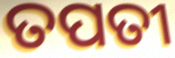
ତପତୀ